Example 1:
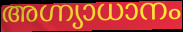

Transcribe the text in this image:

അഗ്ന്യാധാനം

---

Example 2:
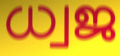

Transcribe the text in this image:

ധ്വജ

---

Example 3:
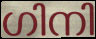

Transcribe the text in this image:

ഗിനി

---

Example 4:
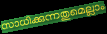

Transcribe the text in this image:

സാധിക്കുന്നതുമെല്ലാം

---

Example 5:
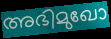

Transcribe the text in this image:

അഭിമുഖോ